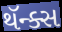
થૅન્ક્સ